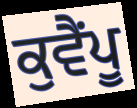
ਕੁਵੈਂਪੂ